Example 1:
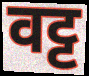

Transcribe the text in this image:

वट्ट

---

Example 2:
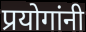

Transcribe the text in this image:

प्रयोगांनी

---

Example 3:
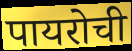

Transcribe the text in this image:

पायरोची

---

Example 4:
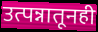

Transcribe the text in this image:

उत्पन्नातूनही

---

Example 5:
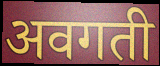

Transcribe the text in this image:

अवगती